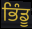
ਭਿੰਡੂ